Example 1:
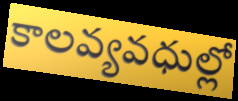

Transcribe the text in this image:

కాలవ్యవధుల్లో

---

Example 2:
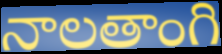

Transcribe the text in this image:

నాలతాంగి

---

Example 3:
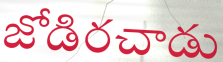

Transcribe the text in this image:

జోడిరచాడు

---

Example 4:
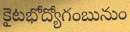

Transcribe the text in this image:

కైటభోద్యోగంబునుం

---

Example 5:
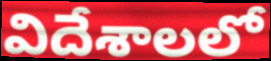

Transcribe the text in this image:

విదేశాలలో